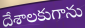
దేశాలకుగాను